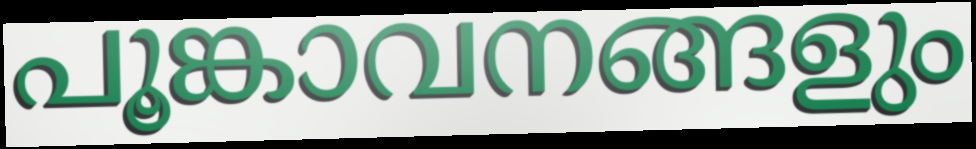
പൂങ്കാവനങ്ങളും